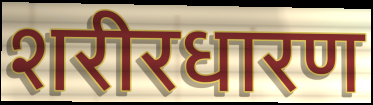
शरीरधारण